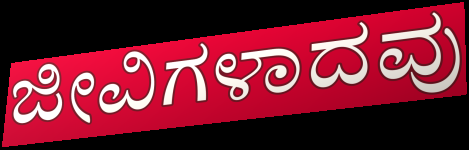
ಜೀವಿಗಳಾದವು